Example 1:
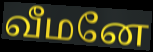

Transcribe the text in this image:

வீமனே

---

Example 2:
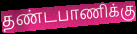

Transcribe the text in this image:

தண்டபாணிக்கு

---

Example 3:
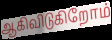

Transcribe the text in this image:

ஆகிவிடுகிறோம்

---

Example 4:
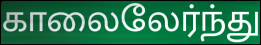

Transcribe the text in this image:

காலைலேர்ந்து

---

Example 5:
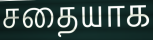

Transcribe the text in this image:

சதையாக